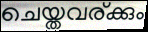
ചെയ്തവര്ക്കും